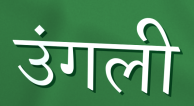
उंगली